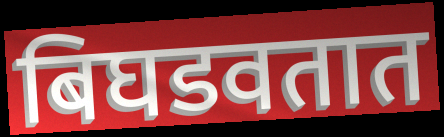
बिघडवतात